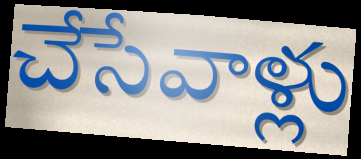
చేసేవాళ్లు